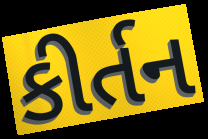
કીર્તન